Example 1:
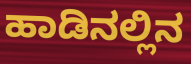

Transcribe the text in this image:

ಹಾಡಿನಲ್ಲಿನ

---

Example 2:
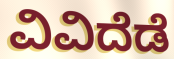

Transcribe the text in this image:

ವಿವಿದೆಡೆ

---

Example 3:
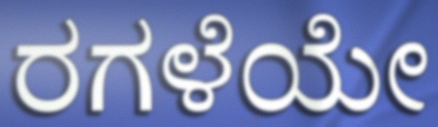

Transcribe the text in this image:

ರಗಳೆಯೇ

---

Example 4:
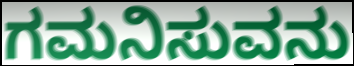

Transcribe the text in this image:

ಗಮನಿಸುವನು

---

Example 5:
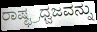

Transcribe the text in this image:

ರಾಷ್ಟ್ರಧ್ವಜವನ್ನು